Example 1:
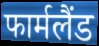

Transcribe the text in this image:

फार्मलैंड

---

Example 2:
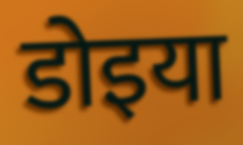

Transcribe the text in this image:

डोइया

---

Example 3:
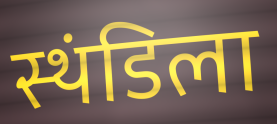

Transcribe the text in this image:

स्थंडिला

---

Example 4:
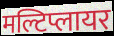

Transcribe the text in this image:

मल्टिप्लायर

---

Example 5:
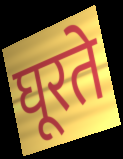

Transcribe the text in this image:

घूरते